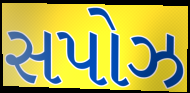
સપોઝ